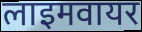
लाइमवायर